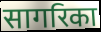
सागरिका